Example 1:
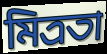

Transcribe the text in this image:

মিত্ৰতা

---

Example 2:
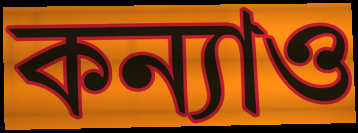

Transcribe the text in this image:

কন্যাও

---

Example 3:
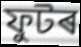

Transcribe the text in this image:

ফুটৰ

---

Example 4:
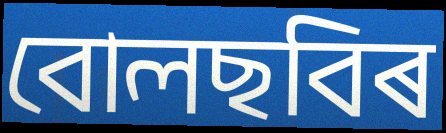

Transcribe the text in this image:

বোলছবিৰ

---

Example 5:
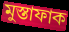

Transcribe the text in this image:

মুস্তাফাক